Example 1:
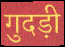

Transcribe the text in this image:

गुदड़ी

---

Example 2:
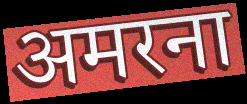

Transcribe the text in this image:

अमरना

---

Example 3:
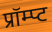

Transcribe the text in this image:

प्रॉम्प्ट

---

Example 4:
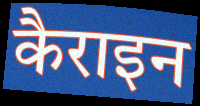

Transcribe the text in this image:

कैराइन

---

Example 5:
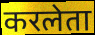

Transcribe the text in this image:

करलेता